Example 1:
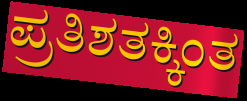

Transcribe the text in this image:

ಪ್ರತಿಶತಕ್ಕಿಂತ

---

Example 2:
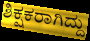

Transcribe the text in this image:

ಶಿಕ್ಷಕರಾಗಿದ್ದು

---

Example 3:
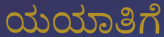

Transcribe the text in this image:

ಯಯಾತಿಗೆ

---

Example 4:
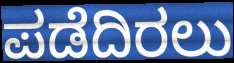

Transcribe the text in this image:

ಪಡೆದಿರಲು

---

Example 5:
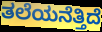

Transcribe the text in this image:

ತಲೆಯನೆತ್ತಿದೆ